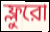
ফ্লুরো